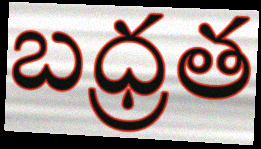
బధ్రత